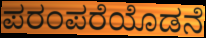
ಪರಂಪರೆಯೊಡನೆ